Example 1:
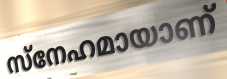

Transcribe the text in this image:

സ്നേഹമായാണ്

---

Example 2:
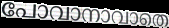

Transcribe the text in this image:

പോവാനാവാതെ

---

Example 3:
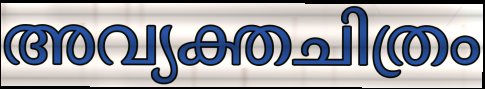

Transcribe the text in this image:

അവ്യക്തചിത്രം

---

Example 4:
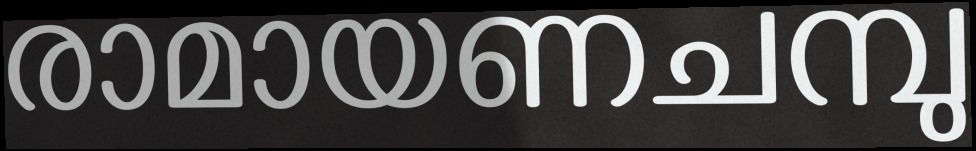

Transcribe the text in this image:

രാമായണചമ്പു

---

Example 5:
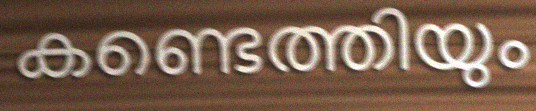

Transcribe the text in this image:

കണ്ടെത്തിയും